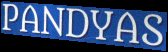
PANDYAS